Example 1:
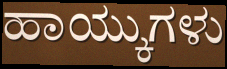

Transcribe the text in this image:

ಹಾಯ್ಕುಗಳು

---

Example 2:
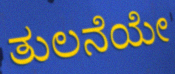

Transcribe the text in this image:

ತುಲನೆಯೇ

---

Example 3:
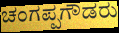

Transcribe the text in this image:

ಚಂಗಪ್ಪಗೌಡರು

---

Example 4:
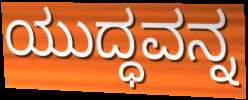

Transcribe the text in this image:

ಯುದ್ಧವನ್ನ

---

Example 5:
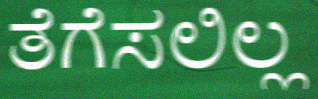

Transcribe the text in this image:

ತೆಗೆಸಲಿಲ್ಲ